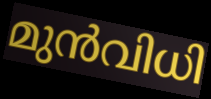
മുൻവിധി